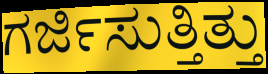
ಗರ್ಜಿಸುತ್ತಿತ್ತು